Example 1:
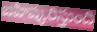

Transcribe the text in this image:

బహిష్కరిస్తుంది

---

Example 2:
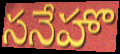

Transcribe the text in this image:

సనేహొ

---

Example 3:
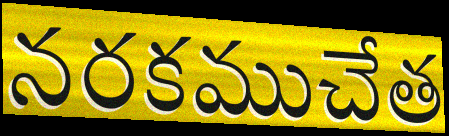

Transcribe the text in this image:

నరకముచేత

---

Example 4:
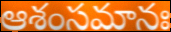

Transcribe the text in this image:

ఆశంసమానః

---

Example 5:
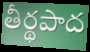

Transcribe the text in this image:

తీర్థపాద